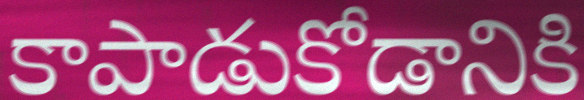
కాపాడుకోడానికి